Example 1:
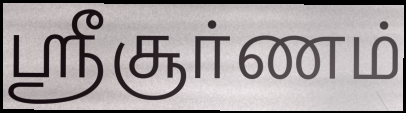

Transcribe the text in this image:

ஸ்ரீசூர்ணம்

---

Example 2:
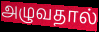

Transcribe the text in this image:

அழுவதால்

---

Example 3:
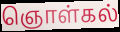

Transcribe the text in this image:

ஞொள்கல்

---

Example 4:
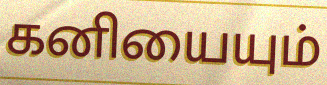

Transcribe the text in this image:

கனியையும்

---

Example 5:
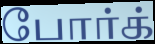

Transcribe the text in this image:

போர்க்